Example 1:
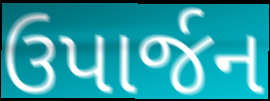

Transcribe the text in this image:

ઉપાર્જન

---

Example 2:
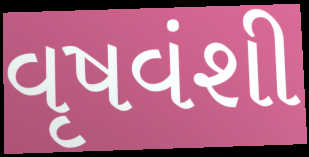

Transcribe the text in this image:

વૃષવંશી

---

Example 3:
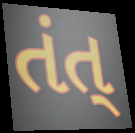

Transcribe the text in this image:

તંત્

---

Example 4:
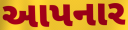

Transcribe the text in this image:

આપનાર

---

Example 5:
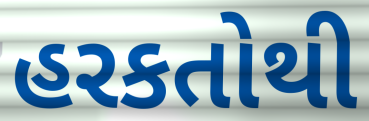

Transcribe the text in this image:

હરકતોથી